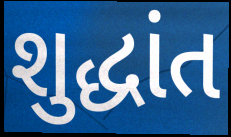
શુદ્ધાંત